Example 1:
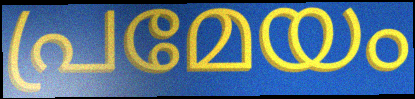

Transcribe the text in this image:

പ്രമേയം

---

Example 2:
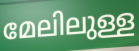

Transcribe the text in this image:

മേലിലുള്ള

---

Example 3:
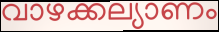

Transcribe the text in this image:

വാഴക്കല്യാണം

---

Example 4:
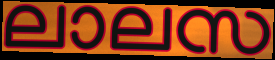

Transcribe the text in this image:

ലാലസ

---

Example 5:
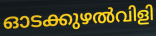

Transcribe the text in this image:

ഓടക്കുഴൽവിളി